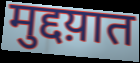
मुद्दय़ात